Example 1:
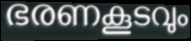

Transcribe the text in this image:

ഭരണകൂടവും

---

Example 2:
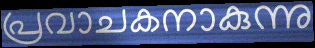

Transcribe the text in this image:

പ്രവാചകനാകുന്നു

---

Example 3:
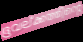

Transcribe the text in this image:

ഭൂവല്ക്കത്തിന്റെ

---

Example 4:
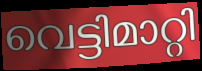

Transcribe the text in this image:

വെട്ടിമാറ്റി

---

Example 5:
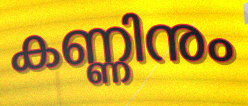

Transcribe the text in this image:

കണ്ണിനും